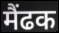
मैंढक